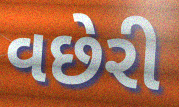
વછેરી